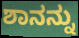
ಶಾನನ್ನು